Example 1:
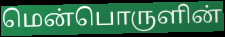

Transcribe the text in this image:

மென்பொருளின்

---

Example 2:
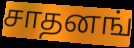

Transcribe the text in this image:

சாதனங்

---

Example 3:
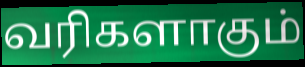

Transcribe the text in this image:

வரிகளாகும்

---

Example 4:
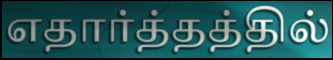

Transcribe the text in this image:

எதார்த்தத்தில்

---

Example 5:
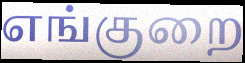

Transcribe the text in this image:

எங்குறை